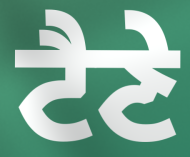
ਟੈਣੇ